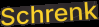
Schrenk